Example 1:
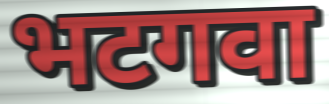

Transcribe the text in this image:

भटगवा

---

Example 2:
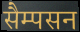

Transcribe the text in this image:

सैम्पसन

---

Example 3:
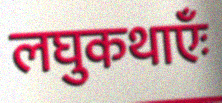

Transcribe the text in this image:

लघुकथाएँः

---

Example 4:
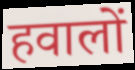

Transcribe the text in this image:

हवालों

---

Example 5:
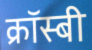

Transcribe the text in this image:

क्रॉस्बी